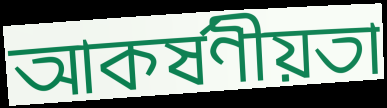
আকর্ষণীয়তা